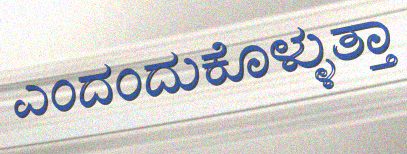
ಎಂದಂದುಕೊಳ್ಳುತ್ತಾ